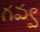
గవ్వ